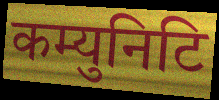
कम्युनिटि